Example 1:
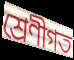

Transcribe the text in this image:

শ্রেণীগত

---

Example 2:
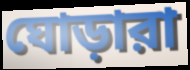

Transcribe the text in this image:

ঘোড়ারা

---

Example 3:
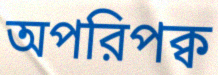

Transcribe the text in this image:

অপরিপক্ব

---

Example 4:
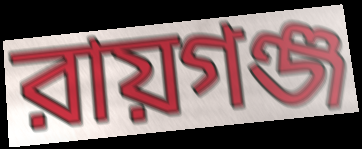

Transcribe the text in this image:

রায়গঞ্জ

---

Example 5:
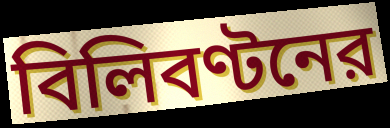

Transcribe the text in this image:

বিলিবণ্টনের